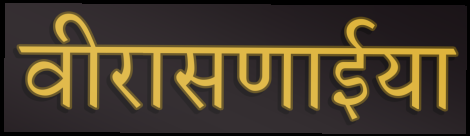
वीरासणाईया